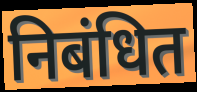
निबंधित